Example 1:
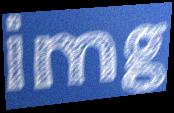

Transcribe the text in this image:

img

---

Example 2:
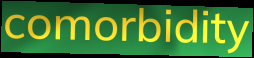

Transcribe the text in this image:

comorbidity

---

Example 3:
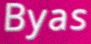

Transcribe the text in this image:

Byas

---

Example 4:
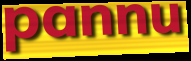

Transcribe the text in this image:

pannu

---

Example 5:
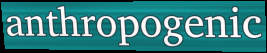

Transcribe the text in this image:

anthropogenic